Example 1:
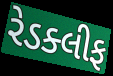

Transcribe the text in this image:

રેડક્લીફ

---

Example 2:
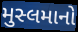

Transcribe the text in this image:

મુસ્લમાનો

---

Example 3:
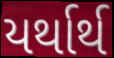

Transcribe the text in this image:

યર્થાર્થ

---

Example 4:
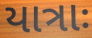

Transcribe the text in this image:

યાત્રાઃ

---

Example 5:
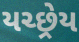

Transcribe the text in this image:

યચ્છ્રેય